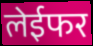
लेईफर